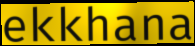
ekkhana